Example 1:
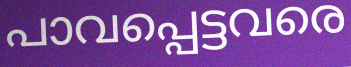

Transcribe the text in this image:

പാവപ്പെട്ടവരെ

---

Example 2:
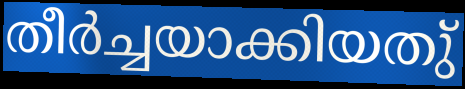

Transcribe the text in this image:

തീർച്ചയാക്കിയതു്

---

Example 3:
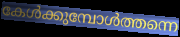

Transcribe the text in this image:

കേൾക്കുമ്പോൾത്തന്നെ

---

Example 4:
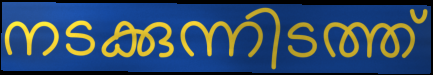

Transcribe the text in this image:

നടക്കുന്നിടത്ത്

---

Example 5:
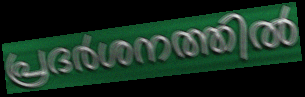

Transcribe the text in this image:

പ്രദർശനത്തിൽ